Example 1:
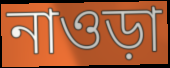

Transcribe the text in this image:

নাওড়া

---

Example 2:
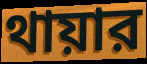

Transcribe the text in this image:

থায়ার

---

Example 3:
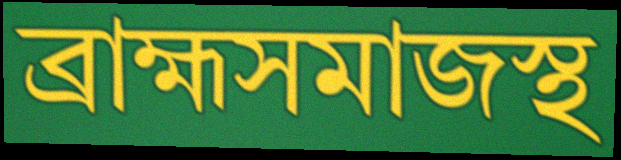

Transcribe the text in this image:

ব্রাহ্মসমাজস্থ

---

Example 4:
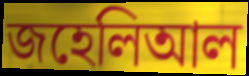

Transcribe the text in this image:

জহেলিআল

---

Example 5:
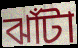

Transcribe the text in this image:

ঝাঁটা